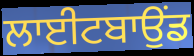
ਲਾਈਟਬਾਉਂਡ